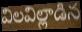
విలవిల్లాడిన